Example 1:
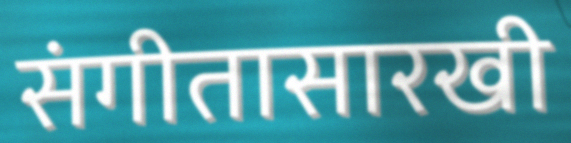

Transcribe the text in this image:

संगीतासारखी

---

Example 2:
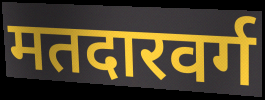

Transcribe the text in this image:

मतदारवर्ग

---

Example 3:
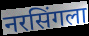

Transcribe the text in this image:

नरसिंगला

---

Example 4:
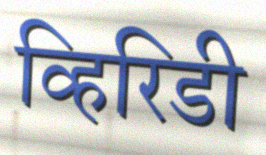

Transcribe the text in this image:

व्हिरिडी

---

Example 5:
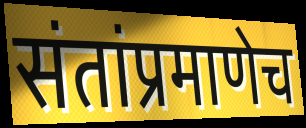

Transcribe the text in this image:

संतांप्रमाणेच